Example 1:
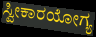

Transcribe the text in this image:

ಸ್ವೀಕಾರಯೋಗ್ಯ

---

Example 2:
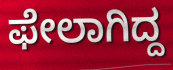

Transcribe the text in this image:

ಫೇಲಾಗಿದ್ದ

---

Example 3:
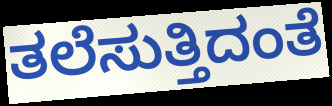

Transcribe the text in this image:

ತಲೆಸುತ್ತಿದಂತೆ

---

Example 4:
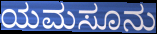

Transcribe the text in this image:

ಯಮಸೂನು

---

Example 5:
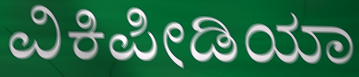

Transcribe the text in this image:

ವಿಕಿಪೀಡಿಯಾ